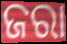
ଜରା